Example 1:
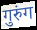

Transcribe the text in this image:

गुरुंग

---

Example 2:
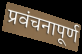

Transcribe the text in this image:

प्रवंचनापूर्ण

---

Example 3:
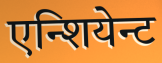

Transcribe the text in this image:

एन्शियेन्ट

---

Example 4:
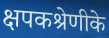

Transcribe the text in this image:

क्षपकश्रेणीके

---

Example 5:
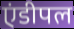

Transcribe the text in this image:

एंडीपल